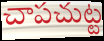
చాపచుట్ట